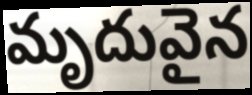
మృదువైన